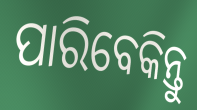
ପାରିବେକିନ୍ତୁ